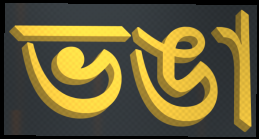
ভঙা